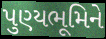
પુણ્યભૂમિને